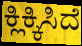
ಕ್ಲಿಕ್ಕಿಸಿದೆ